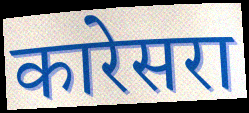
कारेसरा